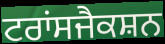
ਟਰਾਂਸਜੈਕਸ਼ਨ